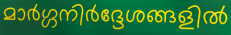
മാർഗ്ഗനിർദ്ദേശങ്ങളിൽ